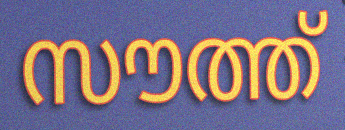
സൗത്ത്